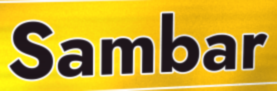
Sambar